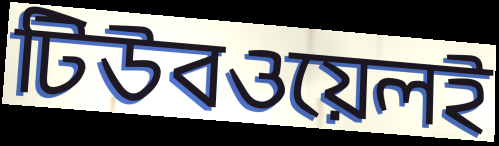
টিউবওয়েলই